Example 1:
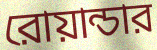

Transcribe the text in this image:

রোয়ান্ডার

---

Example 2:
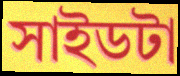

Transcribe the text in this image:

সাইডটা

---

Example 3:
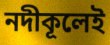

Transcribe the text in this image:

নদীকূলেই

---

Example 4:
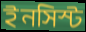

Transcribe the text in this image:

ইনসিস্ট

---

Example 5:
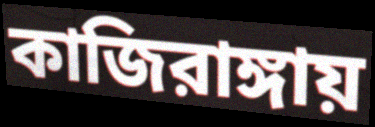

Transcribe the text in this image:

কাজিরাঙ্গায়